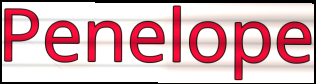
Penelope